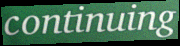
continuing